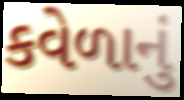
કવેળાનું